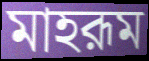
মাহরূম